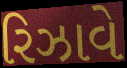
રિઝાવે